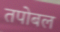
तपोबल